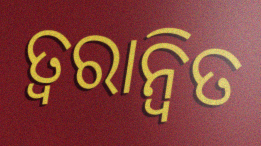
ତ୍ଵରାନ୍ବିତ